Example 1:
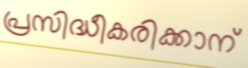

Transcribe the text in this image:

പ്രസിദ്ധീകരിക്കാന്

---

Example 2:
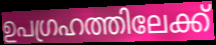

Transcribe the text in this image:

ഉപഗ്രഹത്തിലേക്ക്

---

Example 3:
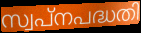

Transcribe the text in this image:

സ്വപ്നപദ്ധതി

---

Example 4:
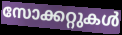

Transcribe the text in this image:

സോക്കറ്റുകൾ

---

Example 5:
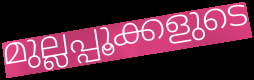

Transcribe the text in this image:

മുല്ലപ്പൂക്കളുടെ